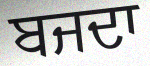
ਬਜਦਾ